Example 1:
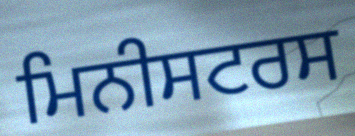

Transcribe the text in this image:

ਮਿਨੀਸਟਰਸ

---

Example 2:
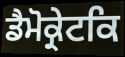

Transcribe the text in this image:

ਡੈਮੋਕ੍ਰੇਟਕਿ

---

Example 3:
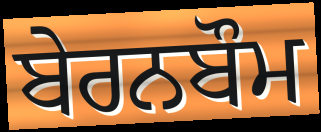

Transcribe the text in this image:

ਬੇਰਨਬੌਮ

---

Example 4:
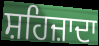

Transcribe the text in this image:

ਸ਼ਹਿਜ਼ਾਦਾ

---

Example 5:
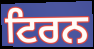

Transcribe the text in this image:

ਟਿਰਨ